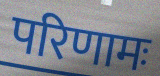
परिणामः